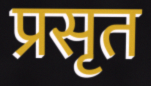
प्रसृत